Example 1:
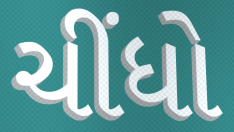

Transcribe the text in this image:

ચીંધો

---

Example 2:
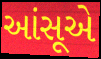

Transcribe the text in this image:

આંસૂએ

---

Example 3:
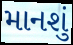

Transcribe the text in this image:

માનશું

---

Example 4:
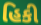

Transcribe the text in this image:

હિકી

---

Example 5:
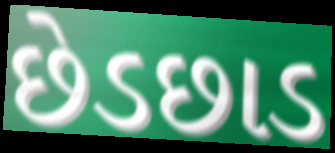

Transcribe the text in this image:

છેડછાડ